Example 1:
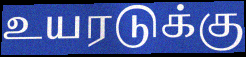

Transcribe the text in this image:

உயரடுக்கு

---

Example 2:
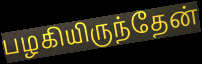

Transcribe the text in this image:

பழகியிருந்தேன்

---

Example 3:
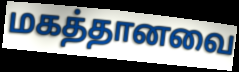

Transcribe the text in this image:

மகத்தானவை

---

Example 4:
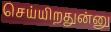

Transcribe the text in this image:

செய்யிறதுன்னு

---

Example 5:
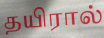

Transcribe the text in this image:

தயிரால்